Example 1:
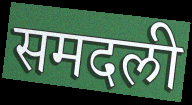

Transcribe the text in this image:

समदली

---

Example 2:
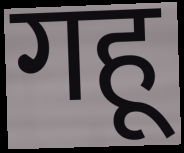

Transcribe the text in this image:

गहू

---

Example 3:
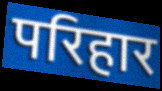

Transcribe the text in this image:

परिहार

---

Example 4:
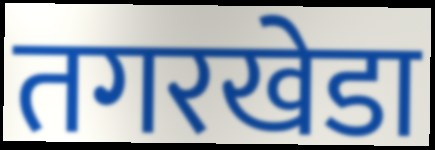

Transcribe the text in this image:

तगरखेडा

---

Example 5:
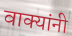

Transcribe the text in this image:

वाक्यांनी